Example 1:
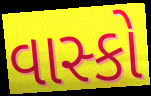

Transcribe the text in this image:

વાસ્કો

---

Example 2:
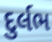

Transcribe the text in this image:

દુર્લભ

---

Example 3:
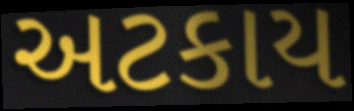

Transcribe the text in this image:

અટકાય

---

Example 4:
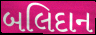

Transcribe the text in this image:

બલિદાન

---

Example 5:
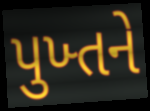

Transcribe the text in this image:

પુખ્તને